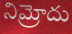
నిమ్రోదు